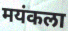
मयंकला